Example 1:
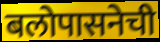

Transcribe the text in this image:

बलोपासनेची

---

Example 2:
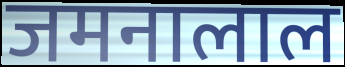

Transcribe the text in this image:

जमनालाल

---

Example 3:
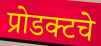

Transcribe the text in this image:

प्रोडक्टचे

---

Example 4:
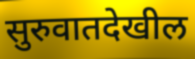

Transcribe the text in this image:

सुरुवातदेखील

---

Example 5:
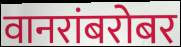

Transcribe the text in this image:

वानरांबरोबर